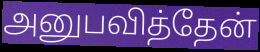
அனுபவித்தேன்